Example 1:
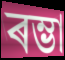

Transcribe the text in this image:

ৰম্ভা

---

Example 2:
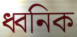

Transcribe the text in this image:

ধ্বনিক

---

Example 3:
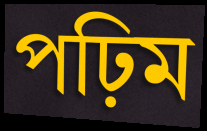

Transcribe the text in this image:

পঢ়িম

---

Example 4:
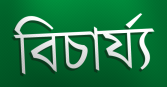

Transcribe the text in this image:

বিচাৰ্য্য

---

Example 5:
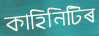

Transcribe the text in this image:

কাহিনিটিৰ